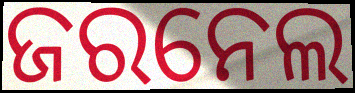
ଜରନେଲ